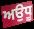
ਅਉਧੂ